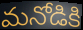
మనోడికి